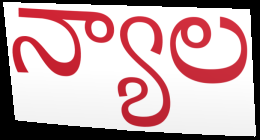
న్యాల